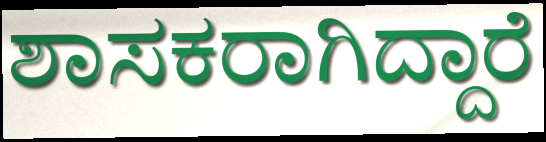
ಶಾಸಕರಾಗಿದ್ದಾರೆ